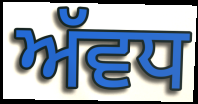
ਅੱਵਧ